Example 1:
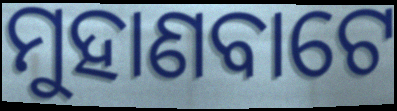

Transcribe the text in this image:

ମୁହାଣବାଟେ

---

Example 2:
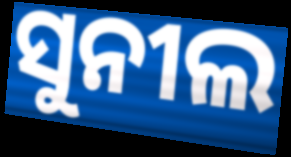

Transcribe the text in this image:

ସୁନୀଲ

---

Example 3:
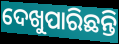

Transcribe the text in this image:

ଦେଖୁପାରିଛନ୍ତି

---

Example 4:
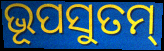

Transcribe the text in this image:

ଭୂପସୁତମ୍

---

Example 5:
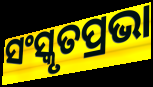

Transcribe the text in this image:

ସଂସ୍କୃତପ୍ରଭା